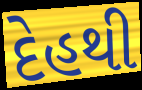
દેહથી